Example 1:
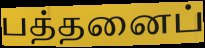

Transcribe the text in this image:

பத்தனைப்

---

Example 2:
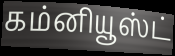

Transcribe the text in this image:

கம்னியூஸ்ட்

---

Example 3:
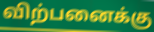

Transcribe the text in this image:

விற்பனைக்கு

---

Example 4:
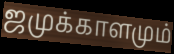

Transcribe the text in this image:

ஜமுக்காளமும்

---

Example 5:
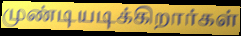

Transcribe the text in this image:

முண்டியடிக்கிறார்கள்